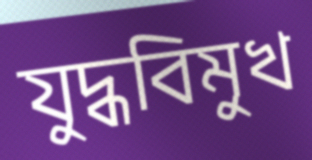
যুদ্ধবিমুখ